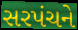
સરપંચને